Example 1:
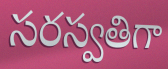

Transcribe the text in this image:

సరస్వతిగా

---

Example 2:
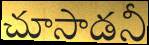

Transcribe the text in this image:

చూసాడనీ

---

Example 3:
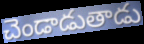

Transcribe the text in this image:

చెండాడుతాడు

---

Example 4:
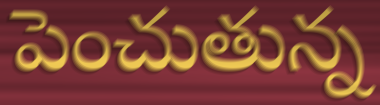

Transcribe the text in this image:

పెంచుతున్న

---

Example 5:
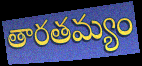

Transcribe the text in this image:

తారతమ్యం